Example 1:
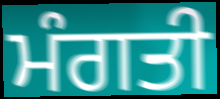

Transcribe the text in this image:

ਮੰਗਤੀ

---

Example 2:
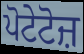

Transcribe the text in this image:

ਪੋਟੇਟੋਜ਼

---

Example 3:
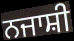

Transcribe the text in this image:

ਨਜਾਸ਼ੀ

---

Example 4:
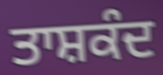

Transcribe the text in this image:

ਤਾਸ਼ਕੰਦ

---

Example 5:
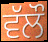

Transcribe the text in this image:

ਵੱਲੌ